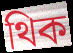
থিক